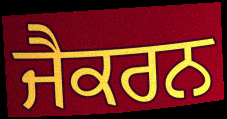
ਜੈਕਰਨ